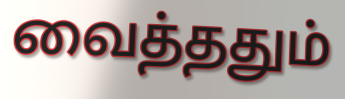
வைத்ததும்